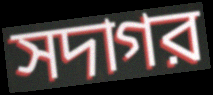
সদাগর